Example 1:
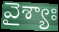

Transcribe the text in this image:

వైశ్యాః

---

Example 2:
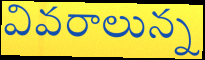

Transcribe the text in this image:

వివరాలున్న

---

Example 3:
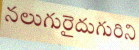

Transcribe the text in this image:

నలుగురైదుగురిని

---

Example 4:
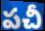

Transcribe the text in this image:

పచీ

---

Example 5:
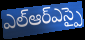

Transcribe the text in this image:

ఎల్ఆర్ఎస్పై